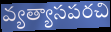
వ్యత్యాసపరచి